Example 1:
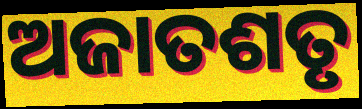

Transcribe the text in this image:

ଅଜାତଶତୃ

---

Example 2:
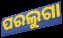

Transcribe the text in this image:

ପରଲୁଗା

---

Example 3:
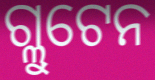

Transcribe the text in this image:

ଗ୍ଲୁଟେନ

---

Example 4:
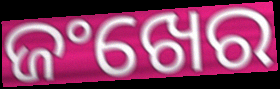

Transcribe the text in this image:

ଜଂଖେର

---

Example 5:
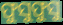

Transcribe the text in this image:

ଫୁସୁଫୁସୁ